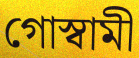
গোস্বামী